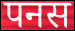
पनस